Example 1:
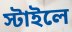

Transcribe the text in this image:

স্টাইলে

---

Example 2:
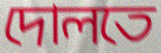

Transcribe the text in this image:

দোলতে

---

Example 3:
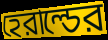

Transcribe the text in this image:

হেরাল্ডের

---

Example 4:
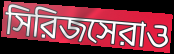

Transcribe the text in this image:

সিরিজসেরাও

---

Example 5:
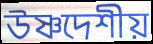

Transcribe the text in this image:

উষ্ণদেশীয়